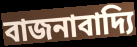
বাজনাবাদ্যি